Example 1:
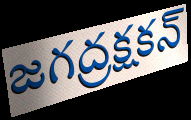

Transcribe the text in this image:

జగద్రక్షకన్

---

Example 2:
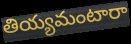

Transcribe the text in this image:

తియ్యమంటారా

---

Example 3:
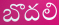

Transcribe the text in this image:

బొదలి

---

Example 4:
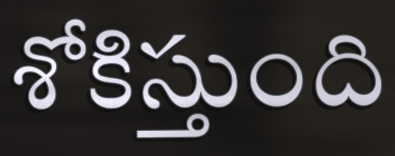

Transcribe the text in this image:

శోకిస్తుంది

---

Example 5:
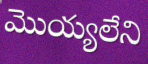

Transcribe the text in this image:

మొయ్యలేని